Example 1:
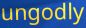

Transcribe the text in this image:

ungodly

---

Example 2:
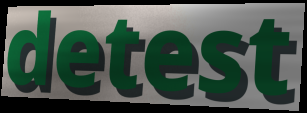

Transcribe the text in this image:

detest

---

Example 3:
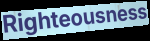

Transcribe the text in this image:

Righteousness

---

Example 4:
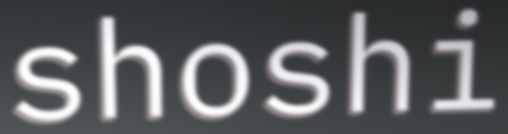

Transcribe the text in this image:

shoshi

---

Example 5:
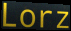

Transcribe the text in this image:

Lorz